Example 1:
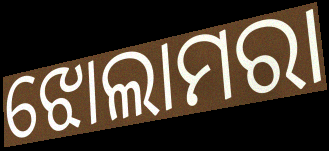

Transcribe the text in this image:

ଝୋଲାମରା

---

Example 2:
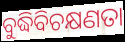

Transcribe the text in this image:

ବୁଦ୍ଧିବିଚକ୍ଷଣତା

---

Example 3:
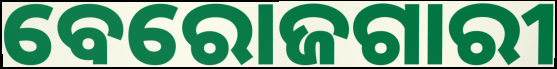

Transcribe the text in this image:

ବେରୋଜଗାରୀ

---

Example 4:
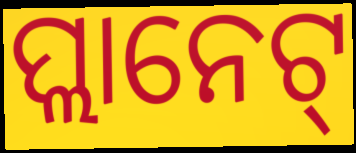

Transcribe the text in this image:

ପ୍ଲାନେଟ୍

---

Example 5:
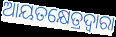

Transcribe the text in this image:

ଆୟତକ୍ଷେତ୍ରଦ୍ଵାରା